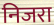
निजरा